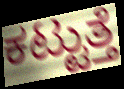
ಕಟ್ಟುತ್ತೆ